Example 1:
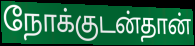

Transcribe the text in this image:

நோக்குடன்தான்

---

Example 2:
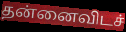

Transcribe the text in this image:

தன்னைவிடச்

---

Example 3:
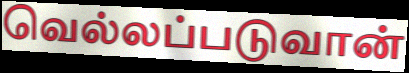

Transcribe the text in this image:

வெல்லப்படுவான்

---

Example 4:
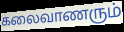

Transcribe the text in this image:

கலைவாணரும்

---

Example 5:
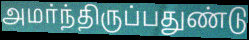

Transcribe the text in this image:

அமர்ந்திருப்பதுண்டு